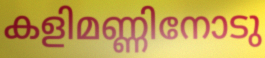
കളിമണ്ണിനോടു